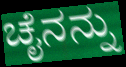
ಚೈನನ್ನು